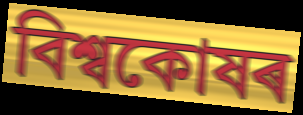
বিশ্বকোষৰ